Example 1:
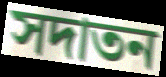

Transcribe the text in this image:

সদাতন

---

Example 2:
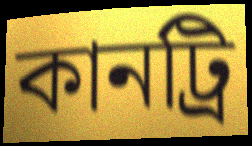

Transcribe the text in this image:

কানট্রি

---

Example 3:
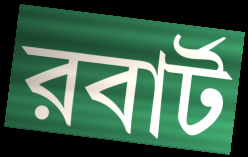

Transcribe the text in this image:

রবার্ট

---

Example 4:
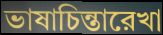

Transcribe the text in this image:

ভাষাচিন্তারেখা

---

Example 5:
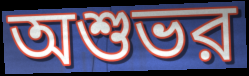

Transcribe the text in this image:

অশুভর